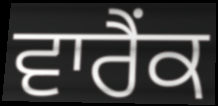
ਵਾਰੈਂਕ